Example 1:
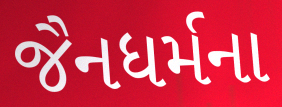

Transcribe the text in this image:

જૈનધર્મના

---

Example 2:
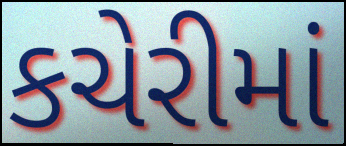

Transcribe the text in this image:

કચેરીમાં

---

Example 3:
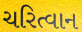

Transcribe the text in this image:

ચરિત્વાન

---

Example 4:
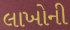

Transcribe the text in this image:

લાખોની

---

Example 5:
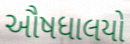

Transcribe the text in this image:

ઔષધાલયો